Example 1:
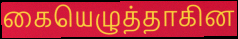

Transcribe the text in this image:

கையெழுத்தாகின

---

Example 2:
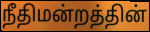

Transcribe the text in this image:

நீதிமன்றத்தின்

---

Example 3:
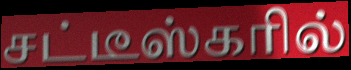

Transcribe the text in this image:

சட்டீஸ்கரில்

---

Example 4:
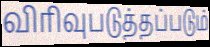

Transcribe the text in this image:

விரிவுபடுத்தப்படும்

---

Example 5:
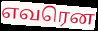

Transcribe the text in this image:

எவரென